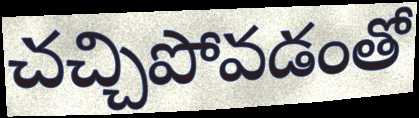
చచ్చిపోవడంతో